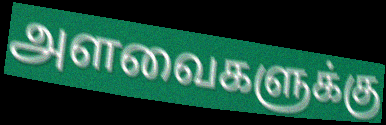
அளவைகளுக்கு